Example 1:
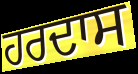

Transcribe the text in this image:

ਹਰਦਾਸ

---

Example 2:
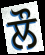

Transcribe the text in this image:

ਲੌ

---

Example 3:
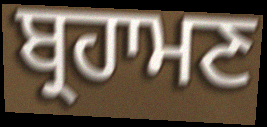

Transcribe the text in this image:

ਬ੍ਰਹਾਮਣ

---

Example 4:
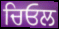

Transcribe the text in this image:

ਚਿਓਲ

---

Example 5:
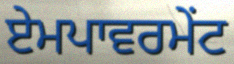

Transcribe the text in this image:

ਏਮਪਾਵਰਮੇਂਟ